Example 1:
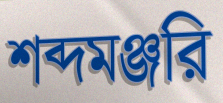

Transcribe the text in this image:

শব্দমঞ্জরি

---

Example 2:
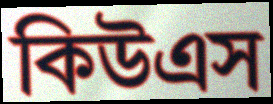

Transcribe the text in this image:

কিউএস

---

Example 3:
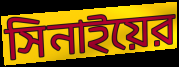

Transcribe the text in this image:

সিনাইয়ের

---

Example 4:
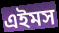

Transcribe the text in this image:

এইমস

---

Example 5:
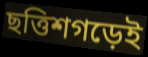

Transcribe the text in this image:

ছত্তিশগড়েই